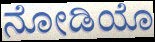
ನೋಡಿಯೊ